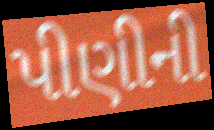
પીણીની